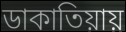
ডাকাতিয়ায়